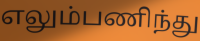
எலும்பணிந்து